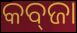
କବ୍‌ଜା